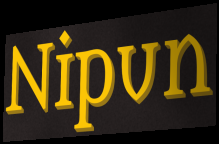
Nipun